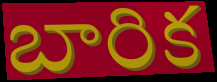
బారిక